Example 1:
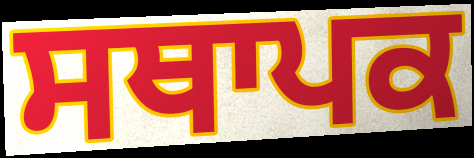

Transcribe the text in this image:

ਸਥਾਪਕ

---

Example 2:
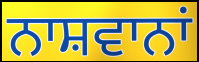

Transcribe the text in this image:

ਨਾਸ਼ਵਾਨਾਂ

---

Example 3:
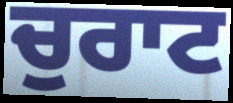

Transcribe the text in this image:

ਚੁਰਾਟ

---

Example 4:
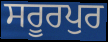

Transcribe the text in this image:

ਸਰੂਰਪੁਰ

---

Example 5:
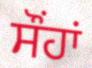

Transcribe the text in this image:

ਸੌਂਹਾਂ